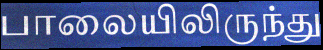
பாலையிலிருந்து